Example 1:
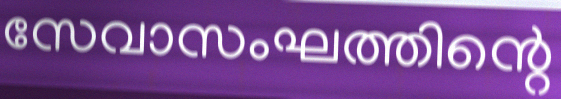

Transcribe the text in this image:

സേവാസംഘത്തിന്റെ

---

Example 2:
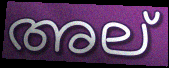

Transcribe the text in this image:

അല്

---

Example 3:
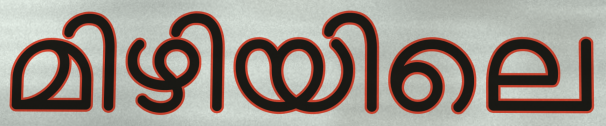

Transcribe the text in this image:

മിഴിയിലെ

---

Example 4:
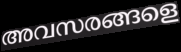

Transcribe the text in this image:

അവസരങ്ങളെ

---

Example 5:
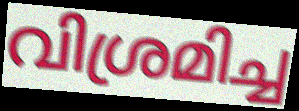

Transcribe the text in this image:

വിശ്രമിച്ച